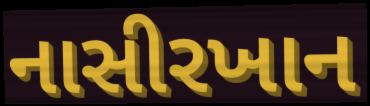
નાસીરખાન